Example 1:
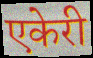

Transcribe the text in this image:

एकेरी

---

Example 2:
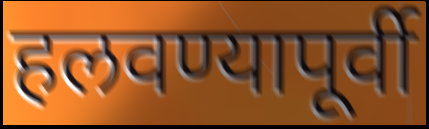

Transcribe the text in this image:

हलवण्यापूर्वी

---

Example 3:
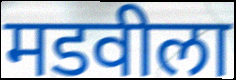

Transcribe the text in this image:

मडवीला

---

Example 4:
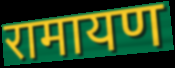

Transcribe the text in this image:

रामायण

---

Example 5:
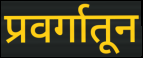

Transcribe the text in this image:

प्रवर्गातून